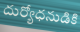
దుర్యోధనుడికి